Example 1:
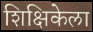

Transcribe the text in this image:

शिक्षिकेला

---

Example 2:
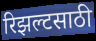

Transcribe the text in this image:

रिझल्टसाठी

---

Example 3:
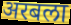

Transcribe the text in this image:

अरबला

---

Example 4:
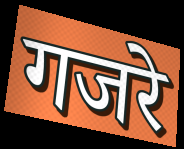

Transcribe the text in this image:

गजरे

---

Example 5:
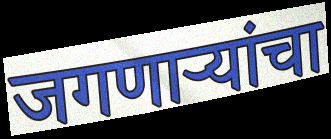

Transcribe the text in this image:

जगणाऱ्यांचा